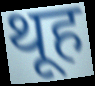
थूह